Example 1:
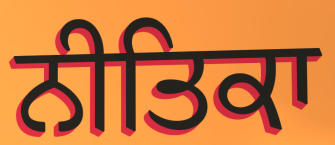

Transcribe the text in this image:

ਨੀਤਿਕਾ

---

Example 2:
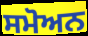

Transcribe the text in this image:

ਸਮੋਅਨ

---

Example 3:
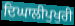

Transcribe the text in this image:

ਦਿਘਾਲੀਪੁਖੁਰੀ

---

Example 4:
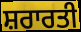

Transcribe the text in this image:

ਸ਼ਰਾਰਤੀ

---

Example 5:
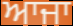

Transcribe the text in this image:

ਆਜਾ